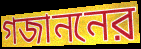
গজাননের